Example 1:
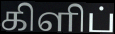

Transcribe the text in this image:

கிளிப்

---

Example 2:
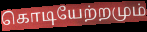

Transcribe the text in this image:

கொடியேற்றமும்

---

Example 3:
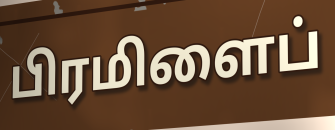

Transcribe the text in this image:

பிரமிளைப்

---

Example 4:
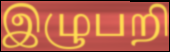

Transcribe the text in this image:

இழுபறி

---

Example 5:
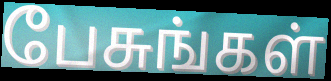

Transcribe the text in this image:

பேசுங்கள்